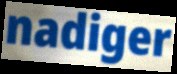
nadiger